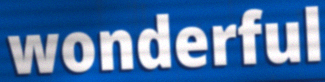
wonderful